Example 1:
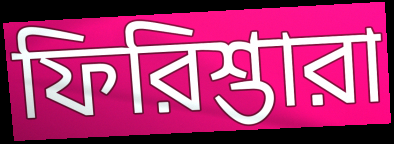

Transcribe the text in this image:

ফিরিশ্তারা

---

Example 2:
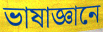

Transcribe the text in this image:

ভাষাজ্ঞানে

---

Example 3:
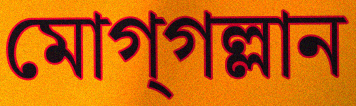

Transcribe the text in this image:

মোগ্‌গল্লান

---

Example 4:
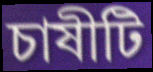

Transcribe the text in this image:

চাষীটি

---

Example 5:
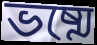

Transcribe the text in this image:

ভষ্মে